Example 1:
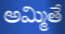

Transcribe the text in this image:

అమ్మితే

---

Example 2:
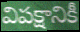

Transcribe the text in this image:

విపక్షానికీ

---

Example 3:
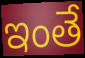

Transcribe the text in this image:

ఇంతే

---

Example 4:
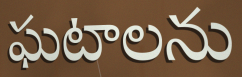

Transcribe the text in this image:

ఘటాలను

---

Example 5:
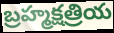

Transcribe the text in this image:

బ్రహ్మక్షత్రియ